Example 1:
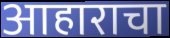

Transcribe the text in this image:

आहाराचा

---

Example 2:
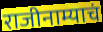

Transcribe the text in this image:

राजीनाम्याचं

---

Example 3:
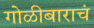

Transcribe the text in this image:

गोळीबाराचं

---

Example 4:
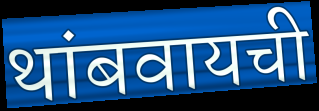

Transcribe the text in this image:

थांबवायची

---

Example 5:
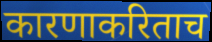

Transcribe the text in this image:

कारणाकरिताच